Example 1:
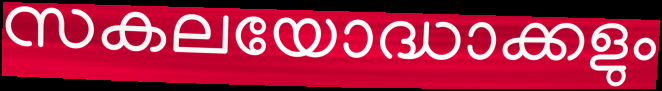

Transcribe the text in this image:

സകലയോദ്ധാക്കളും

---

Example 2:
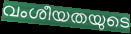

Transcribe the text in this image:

വംശീയതയുടെ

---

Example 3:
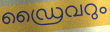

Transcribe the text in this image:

ഡ്രൈവറും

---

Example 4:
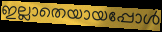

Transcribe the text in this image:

ഇല്ലാതെയായപ്പോൾ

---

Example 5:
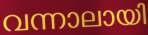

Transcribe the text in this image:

വന്നാലായി